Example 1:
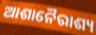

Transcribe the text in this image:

ଆଶାନୈରାଶ୍ୟ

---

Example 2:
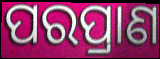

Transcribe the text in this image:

ପରପ୍ରାଣ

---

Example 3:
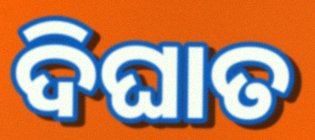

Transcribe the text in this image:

ଦିଘାତ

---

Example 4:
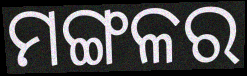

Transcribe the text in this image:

ମଙ୍ଗଳର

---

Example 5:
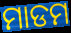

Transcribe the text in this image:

ମାଡମ